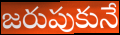
జరుపుకునే